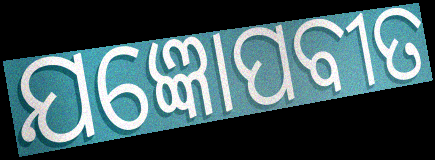
ଯଜ୍ଞୋପବୀତ